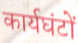
कार्यघंटों